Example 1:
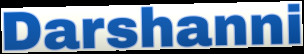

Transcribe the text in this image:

Darshanni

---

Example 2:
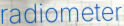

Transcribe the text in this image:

radiometer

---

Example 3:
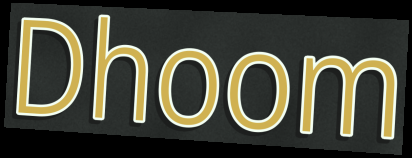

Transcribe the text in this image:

Dhoom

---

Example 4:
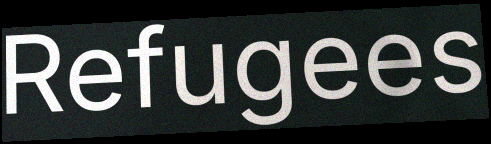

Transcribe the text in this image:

Refugees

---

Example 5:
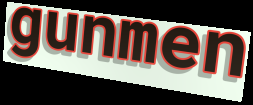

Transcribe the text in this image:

gunmen